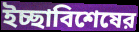
ইচ্ছাবিশেষের